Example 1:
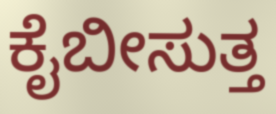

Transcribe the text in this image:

ಕೈಬೀಸುತ್ತ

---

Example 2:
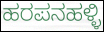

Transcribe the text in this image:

ಹರಪನಹಳ್ಳಿ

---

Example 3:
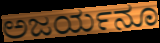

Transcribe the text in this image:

ಅಜರ್ಯನೂ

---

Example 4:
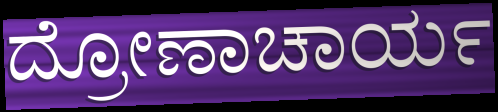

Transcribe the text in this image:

ದ್ರೋಣಾಚಾರ್ಯ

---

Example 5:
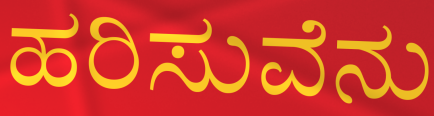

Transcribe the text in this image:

ಹರಿಸುವೆನು